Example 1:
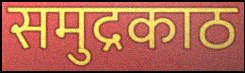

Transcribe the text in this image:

समुद्रकाठ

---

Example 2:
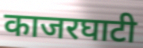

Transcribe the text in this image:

काजरघाटी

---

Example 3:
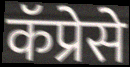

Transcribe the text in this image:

कॅप्रेसे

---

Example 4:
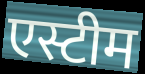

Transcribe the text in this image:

एस्टीम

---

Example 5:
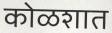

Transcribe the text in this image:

कोळशात